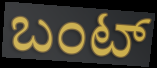
ಬಂಟ್